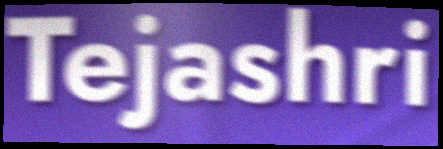
Tejashri